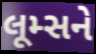
લૂમ્સને